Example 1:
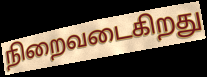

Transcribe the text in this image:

நிறைவடைகிறது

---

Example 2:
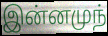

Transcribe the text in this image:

இன்னமுந்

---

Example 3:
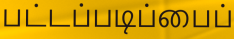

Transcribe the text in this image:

பட்டப்படிப்பைப்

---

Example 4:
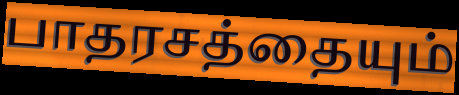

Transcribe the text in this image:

பாதரசத்தையும்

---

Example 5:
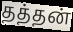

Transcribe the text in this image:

தத்தன்